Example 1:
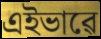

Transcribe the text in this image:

এইভাৱে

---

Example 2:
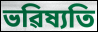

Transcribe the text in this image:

ভৱিষ্যতি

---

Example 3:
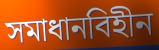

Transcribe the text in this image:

সমাধানবিহীন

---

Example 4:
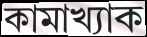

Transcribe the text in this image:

কামাখ্যাক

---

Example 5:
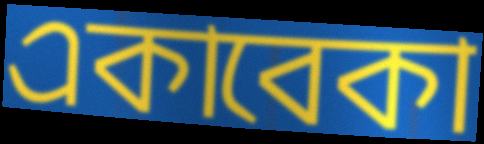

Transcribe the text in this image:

একাবেকা